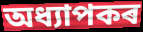
অধ্যাপকৰ